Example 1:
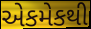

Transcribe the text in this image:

એકમેકથી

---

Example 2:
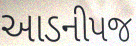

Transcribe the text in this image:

આડનીપજ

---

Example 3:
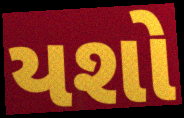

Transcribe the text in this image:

યશો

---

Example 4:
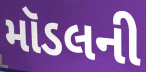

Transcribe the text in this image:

મૉડલની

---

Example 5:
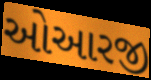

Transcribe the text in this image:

ઓઆરજી